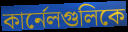
কার্নেলগুলিকে